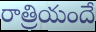
రాత్రియందే